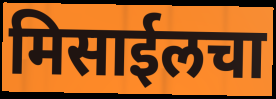
मिसाईलचा